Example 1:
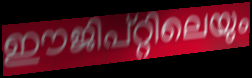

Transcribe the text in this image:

ഈജിപ്റ്റിലെയും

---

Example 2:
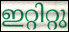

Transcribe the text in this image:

ഇറ്റിറ്റു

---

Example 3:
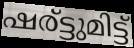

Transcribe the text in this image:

ഷര്ട്ടുമിട്ട്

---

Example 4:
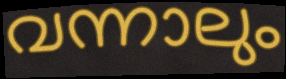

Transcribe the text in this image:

വന്നാലും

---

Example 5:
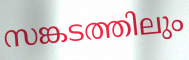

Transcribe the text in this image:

സങ്കടത്തിലും